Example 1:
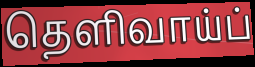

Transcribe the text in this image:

தெளிவாய்ப்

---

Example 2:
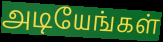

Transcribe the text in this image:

அடியேங்கள்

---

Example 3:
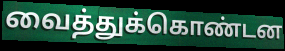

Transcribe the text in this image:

வைத்துக்கொண்டன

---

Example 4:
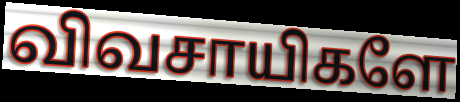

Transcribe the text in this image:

விவசாயிகளே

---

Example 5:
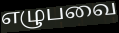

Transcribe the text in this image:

எழுபவை